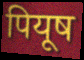
पियूष